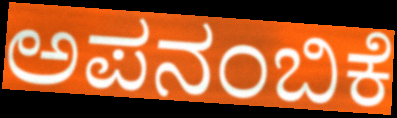
ಅಪನಂಬಿಕೆ